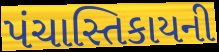
પંચાસ્તિકાયની